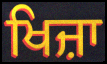
ਖਿਜ਼ਾ